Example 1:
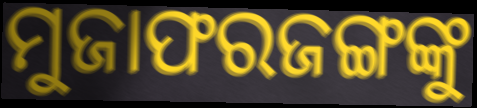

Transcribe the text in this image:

ମୁଜାଫରଜଙ୍ଗଙ୍କୁ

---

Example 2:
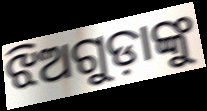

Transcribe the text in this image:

ଝିଅଗୁଡ଼ାଙ୍କୁ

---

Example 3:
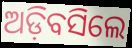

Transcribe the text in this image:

ଅଡ଼ିବସିଲେ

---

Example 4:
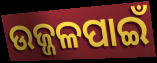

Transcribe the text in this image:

ଉଜ୍ଜଳପାଇଁ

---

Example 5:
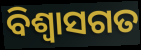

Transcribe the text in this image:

ବିଶ୍ଵାସଗତ